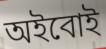
অইবোই